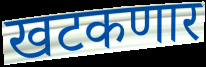
खटकणार